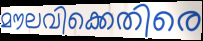
മൗലവിക്കെതിരെ